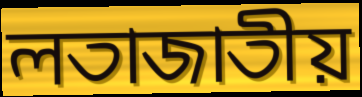
লতাজাতীয়